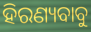
ହିରଣ୍ୟବାବୁ